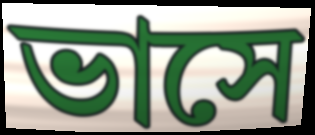
ভাসে